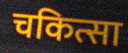
चकित्सा